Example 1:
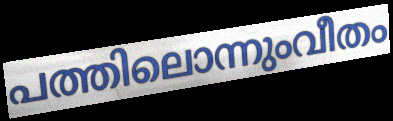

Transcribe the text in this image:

പത്തിലൊന്നുംവീതം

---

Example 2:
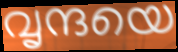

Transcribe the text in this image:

വൃന്ദയെ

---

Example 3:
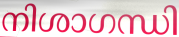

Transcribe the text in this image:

നിശാഗന്ധി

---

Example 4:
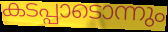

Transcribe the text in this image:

കടപ്പാടൊന്നും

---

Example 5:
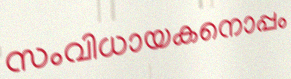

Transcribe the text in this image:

സംവിധായകനൊപ്പം